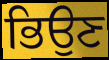
ਭਿਉਣ